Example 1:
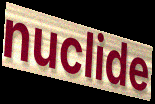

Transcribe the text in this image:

nuclide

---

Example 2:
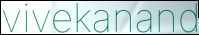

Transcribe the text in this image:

vivekanand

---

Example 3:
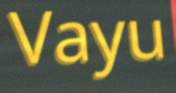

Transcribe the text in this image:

Vayu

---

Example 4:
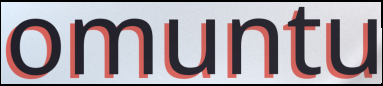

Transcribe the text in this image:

omuntu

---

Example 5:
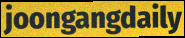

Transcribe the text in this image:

joongangdaily